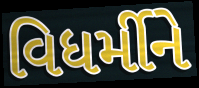
વિધર્મીને